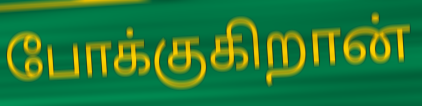
போக்குகிறான்